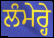
ਲੰਮੇਰ੍ਹੇ